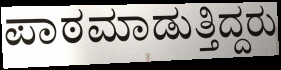
ಪಾಠಮಾಡುತ್ತಿದ್ದರು